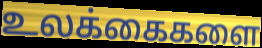
உலக்கைகளை